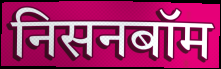
निसनबॉम